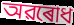
অৱৰোধ